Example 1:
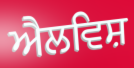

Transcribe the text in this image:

ਐਲਵਿਸ਼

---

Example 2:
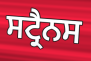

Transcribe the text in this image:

ਸਟ੍ਰੈਨਸ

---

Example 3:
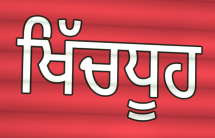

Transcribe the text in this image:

ਖਿੱਚਧੂਹ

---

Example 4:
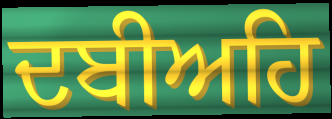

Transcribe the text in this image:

ਦਬੀਅਹਿ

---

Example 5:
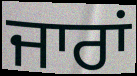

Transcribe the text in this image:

ਜਾਰਾਂ